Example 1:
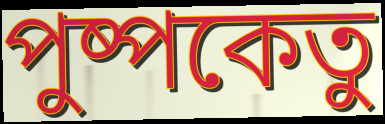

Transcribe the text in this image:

পুষ্পকেতু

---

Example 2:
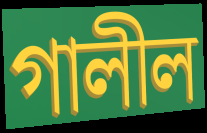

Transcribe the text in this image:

গালীল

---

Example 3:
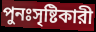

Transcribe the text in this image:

পুনঃসৃষ্টিকারী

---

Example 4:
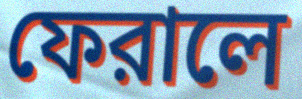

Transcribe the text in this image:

ফেরালে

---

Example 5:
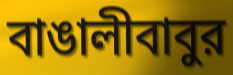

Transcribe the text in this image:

বাঙালীবাবুর